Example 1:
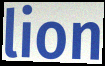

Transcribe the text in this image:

lion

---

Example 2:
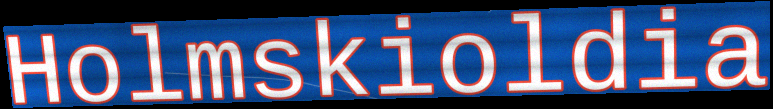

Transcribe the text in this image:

Holmskioldia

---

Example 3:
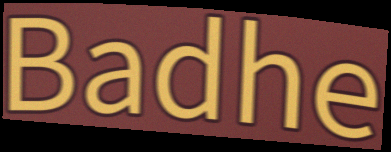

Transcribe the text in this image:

Badhe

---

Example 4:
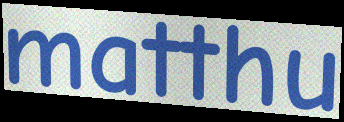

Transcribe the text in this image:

matthu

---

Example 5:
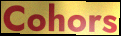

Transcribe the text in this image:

Cohors